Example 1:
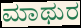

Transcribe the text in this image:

ಮಾಥುರ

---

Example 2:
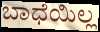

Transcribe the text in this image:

ಬಾಧೆಯಿಲ್ಲ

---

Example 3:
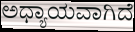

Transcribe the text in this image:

ಅಧ್ಯಾಯವಾಗಿದೆ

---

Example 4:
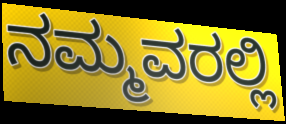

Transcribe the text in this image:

ನಮ್ಮವರಲ್ಲಿ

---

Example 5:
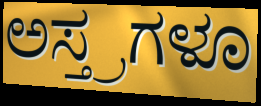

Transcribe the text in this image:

ಅಸ್ತ್ರಗಳೂ